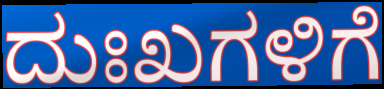
ದುಃಖಗಳಿಗೆ